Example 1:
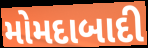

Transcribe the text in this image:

મોમદાબાદી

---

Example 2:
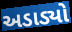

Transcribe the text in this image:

અડાડ્યો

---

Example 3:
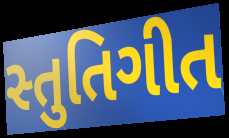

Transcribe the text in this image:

સ્તુતિગીત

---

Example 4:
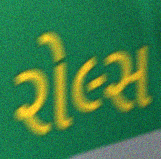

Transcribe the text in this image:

રોલ્સ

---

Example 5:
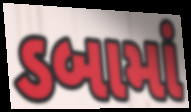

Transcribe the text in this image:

ડબામાં